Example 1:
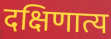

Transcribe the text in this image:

दक्षिणात्य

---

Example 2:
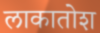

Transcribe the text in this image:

लाकातोश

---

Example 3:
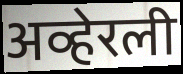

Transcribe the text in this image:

अव्हेरली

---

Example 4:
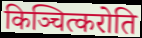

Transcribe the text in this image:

किञ्चित्करोति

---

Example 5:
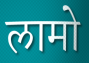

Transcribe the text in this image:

लामो